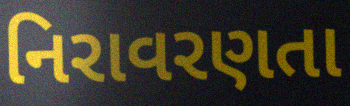
નિરાવરણતા